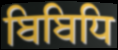
ਬਿਬਿਧਿ